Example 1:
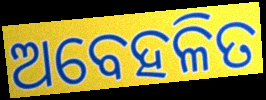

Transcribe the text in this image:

ଅବେହଳିତ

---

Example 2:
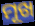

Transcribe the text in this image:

ମୂଖ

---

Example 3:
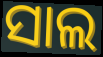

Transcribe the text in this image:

ସାଲ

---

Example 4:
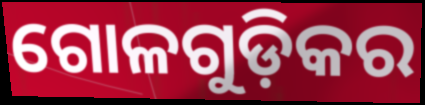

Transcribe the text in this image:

ଗୋଳଗୁଡ଼ିକର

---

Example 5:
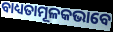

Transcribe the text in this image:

ବାଧ୍ୟତାମୂଳକଭାବେ